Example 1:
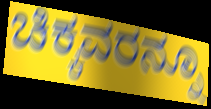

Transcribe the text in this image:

ಚಿಕ್ಕವರನ್ನೂ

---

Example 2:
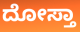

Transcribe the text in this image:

ದೋಸ್ತಾ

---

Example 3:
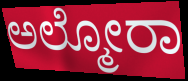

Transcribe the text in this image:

ಅಲ್ಮೋರಾ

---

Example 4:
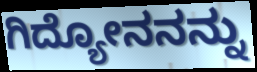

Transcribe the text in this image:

ಗಿದ್ಯೋನನನ್ನು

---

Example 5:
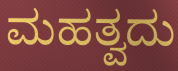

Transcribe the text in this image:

ಮಹತ್ವದು